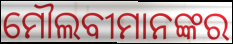
ମୌଲବୀମାନଙ୍କର